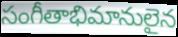
సంగీతాభిమానులైన